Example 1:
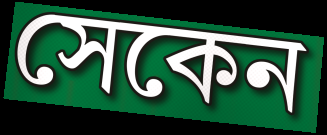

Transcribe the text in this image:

সেকেন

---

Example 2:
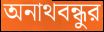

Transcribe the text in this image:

অনাথবন্ধুর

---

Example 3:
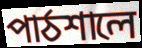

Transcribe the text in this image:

পাঠশালে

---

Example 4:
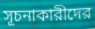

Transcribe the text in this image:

সূচনাকারীদের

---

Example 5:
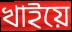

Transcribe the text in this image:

খাইয়ে